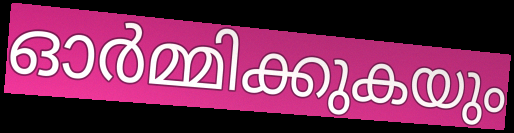
ഓർമ്മിക്കുകയും